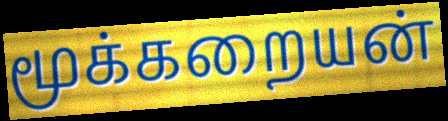
மூக்கறையன்